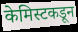
केमिस्टकडून